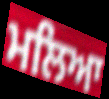
ਮਲਿਆ